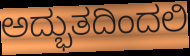
ಅದ್ಭುತದಿಂದಲಿ